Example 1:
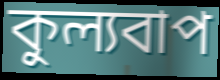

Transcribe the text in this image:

কুল্যবাপ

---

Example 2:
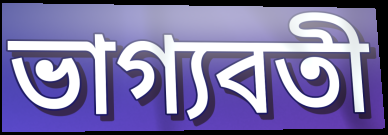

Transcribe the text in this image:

ভাগ্যবতী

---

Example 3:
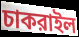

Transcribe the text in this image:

চাকরাইল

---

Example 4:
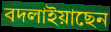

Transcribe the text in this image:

বদলাইয়াছেন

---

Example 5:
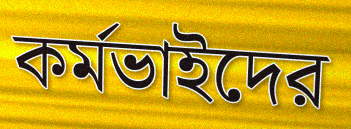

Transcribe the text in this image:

কর্মভাইদের